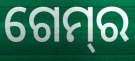
ଗେମ୍‌ର